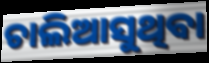
ଚାଲିଆସୁଥିବା